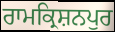
ਰਾਮਕ੍ਰਿਸ਼ਨਪੁਰ